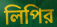
লিপির